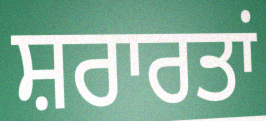
ਸ਼ਰਾਰਤਾਂ